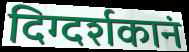
दिग्दर्शकानं